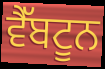
ਵੈੱਬਟੂਨ